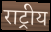
राट्रीय